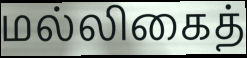
மல்லிகைத்